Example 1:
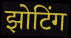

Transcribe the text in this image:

झोटिंग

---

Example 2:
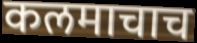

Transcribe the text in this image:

कलमाचाच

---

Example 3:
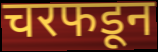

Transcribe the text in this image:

चरफडून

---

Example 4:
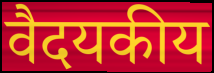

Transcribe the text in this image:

वैदयकीय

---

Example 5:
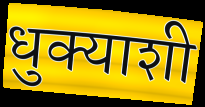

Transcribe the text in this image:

धुक्याशी